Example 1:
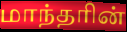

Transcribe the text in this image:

மாந்தரின்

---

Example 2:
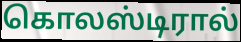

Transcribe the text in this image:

கொலஸ்டிரால்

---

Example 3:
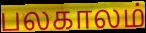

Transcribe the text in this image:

பலகாலம்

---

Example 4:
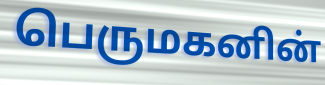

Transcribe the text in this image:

பெருமகனின்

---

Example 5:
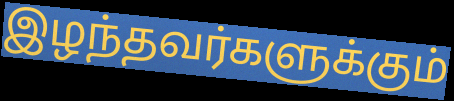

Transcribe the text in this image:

இழந்தவர்களுக்கும்